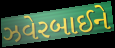
ઝવેરબાઈને